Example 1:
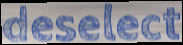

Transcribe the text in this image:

deselect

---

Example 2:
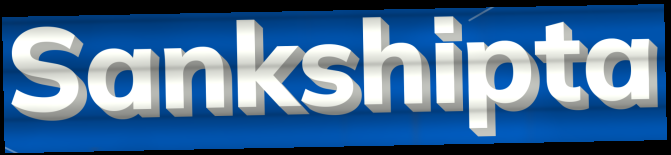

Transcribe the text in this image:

Sankshipta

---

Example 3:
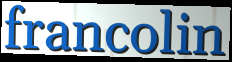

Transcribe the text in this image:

francolin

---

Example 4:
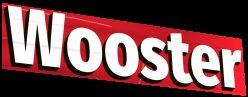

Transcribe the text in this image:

Wooster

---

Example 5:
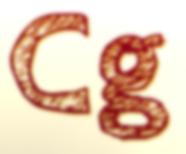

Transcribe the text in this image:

Cg